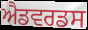
ਐਡਵਰਡਸ